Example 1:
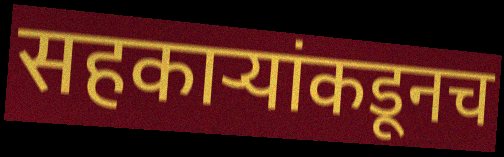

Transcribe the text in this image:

सहकार्‍यांकडूनच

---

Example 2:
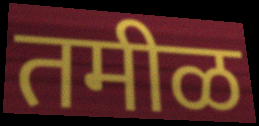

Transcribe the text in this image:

तमीळ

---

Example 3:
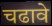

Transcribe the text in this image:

चढावे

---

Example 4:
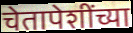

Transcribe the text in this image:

चेतापेशींच्या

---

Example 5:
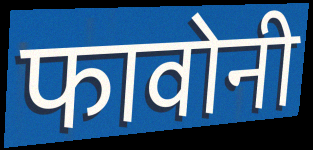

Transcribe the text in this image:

फावोनी